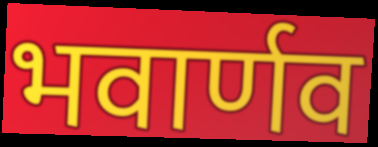
भवार्णव